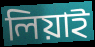
লিয়াই